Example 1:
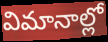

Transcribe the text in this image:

విమానాల్లో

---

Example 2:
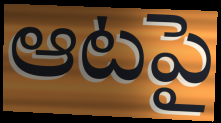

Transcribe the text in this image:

ఆటపై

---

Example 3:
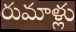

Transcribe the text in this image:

రుమాళ్లు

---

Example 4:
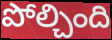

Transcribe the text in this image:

పోల్చింది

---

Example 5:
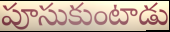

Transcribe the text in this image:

పూసుకుంటాడు